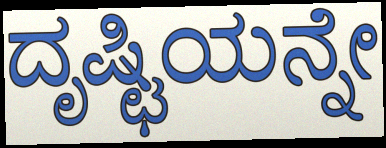
ದೃಷ್ಟಿಯನ್ನೇ